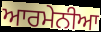
ਆਰਮੇਨੀਆ